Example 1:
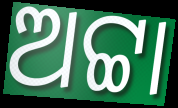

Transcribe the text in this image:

ଅଟ୍ଟା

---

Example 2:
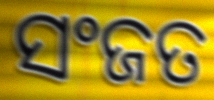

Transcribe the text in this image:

ସଂଜତ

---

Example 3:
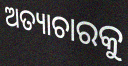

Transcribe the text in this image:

ଅତ୍ୟାଚାରକୁ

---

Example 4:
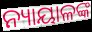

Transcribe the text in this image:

ନ୍ୟାୟାଳଙ୍କ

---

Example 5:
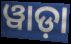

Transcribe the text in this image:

ୱାଡ଼ା